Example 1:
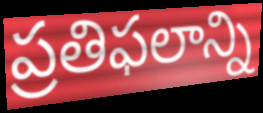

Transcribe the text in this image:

ప్రతిఫలాన్ని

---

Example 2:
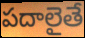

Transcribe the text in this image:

పదాలైతే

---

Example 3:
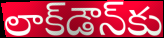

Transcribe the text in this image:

లాక్‌డౌన్‌కు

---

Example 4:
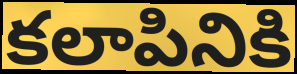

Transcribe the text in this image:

కలాపినికి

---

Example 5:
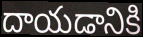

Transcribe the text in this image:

దాయడానికి